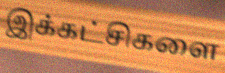
இக்கட்சிகளை